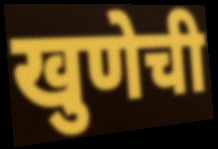
खुणेची